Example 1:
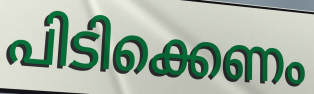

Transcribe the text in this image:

പിടിക്കെണം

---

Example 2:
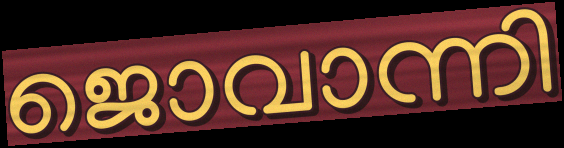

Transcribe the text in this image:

ജൊവാന്നി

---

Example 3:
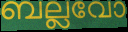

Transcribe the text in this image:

ബല്ലവോ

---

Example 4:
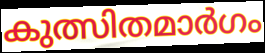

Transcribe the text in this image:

കുത്സിതമാർഗം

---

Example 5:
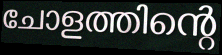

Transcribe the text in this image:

ചോളത്തിന്റെ